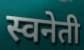
स्वनेती